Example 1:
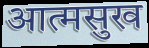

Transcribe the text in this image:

आत्मसुख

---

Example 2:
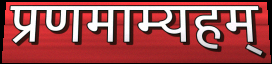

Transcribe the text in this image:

प्रणमाम्यहम्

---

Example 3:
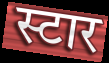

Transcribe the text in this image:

स्‍टार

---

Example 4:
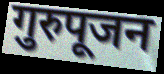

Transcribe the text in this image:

गुरुपूजन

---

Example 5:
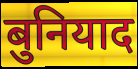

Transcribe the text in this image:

बुनियाद